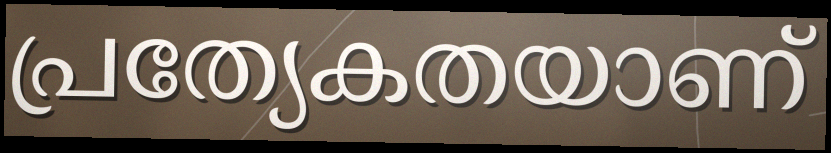
പ്രത്യേകതയാണ്